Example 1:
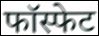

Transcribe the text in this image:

फॉस्फेट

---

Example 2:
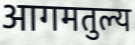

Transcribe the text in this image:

आगमतुल्य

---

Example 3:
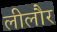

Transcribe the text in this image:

लीलौर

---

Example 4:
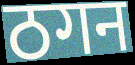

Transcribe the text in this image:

ठगन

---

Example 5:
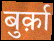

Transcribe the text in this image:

बुर्क़ा